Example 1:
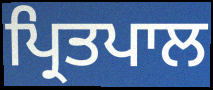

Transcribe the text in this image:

ਪ੍ਰਿਤਪਾਲ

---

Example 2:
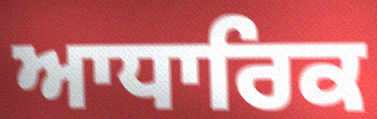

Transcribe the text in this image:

ਆਧਾਰਿਕ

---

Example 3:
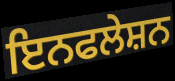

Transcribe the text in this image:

ਇਨਫਲੇਸ਼ਨ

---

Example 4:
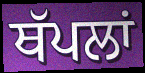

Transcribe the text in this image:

ਥੱਪਲਾਂ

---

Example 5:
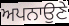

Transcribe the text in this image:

ਅਪਨਾਉਣੇ